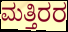
ಮತ್ತಿರರ